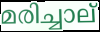
മരിച്ചാല്